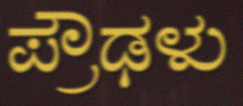
ಪ್ರೌಢಳು